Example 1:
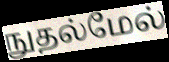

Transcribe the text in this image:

நுதல்மேல்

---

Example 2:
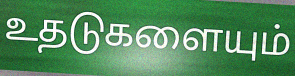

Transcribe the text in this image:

உதடுகளையும்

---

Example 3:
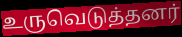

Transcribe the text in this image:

உருவெடுத்தனர்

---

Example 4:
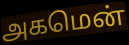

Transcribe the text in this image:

அகமென்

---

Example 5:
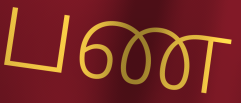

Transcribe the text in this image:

பண